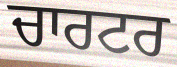
ਚਾਰਟਰ